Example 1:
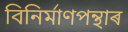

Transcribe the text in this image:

বিনিৰ্মাণপন্থাৰ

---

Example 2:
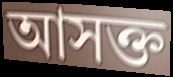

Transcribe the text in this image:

আসক্ত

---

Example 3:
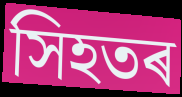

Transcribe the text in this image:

সিহতৰ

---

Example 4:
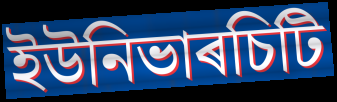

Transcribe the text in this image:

ইউনিভাৰচিটি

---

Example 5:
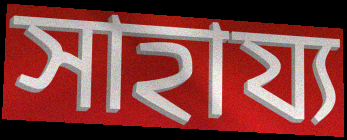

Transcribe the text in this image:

সাহায্য